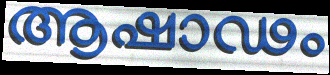
ആഷാഢം